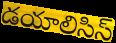
డయాలిసిస్